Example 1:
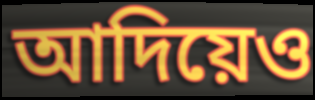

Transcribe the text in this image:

আদিয়েও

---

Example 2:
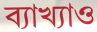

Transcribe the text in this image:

ব্যাখ্যাও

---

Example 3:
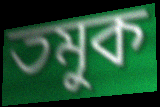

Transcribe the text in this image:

তমুক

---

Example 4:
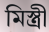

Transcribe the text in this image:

মিস্ত্ৰী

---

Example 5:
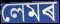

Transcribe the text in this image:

লেমৰ